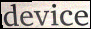
device